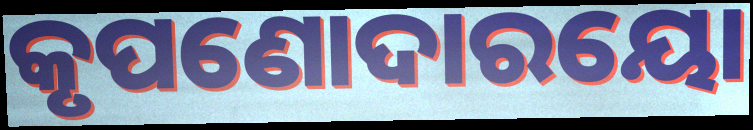
କୃପଣୋଦାରୟୋ